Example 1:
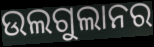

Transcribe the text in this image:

ଉଲଗୁଲାନର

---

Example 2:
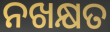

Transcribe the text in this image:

ନଖକ୍ଷତ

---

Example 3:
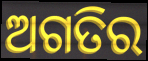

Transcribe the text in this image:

ଅଗତିର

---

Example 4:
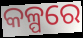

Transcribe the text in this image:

କଳ୍ପରେ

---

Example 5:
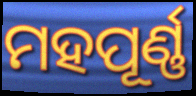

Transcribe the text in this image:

ମହପୂର୍ଣ୍ଣ